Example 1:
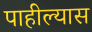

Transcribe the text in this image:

पाहील्यास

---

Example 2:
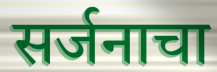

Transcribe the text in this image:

सर्जनाचा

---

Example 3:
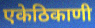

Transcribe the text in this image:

एकेठिकाणी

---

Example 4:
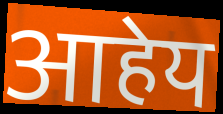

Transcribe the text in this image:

आहेय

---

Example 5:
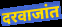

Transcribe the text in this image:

दरवाजांत